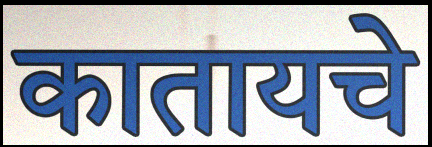
कातायचे